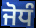
ਜੋਧੰ